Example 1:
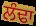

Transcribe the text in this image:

ਲੰਢਾ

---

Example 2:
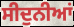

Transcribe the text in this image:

ਸੀਦੁਨੀਆਂ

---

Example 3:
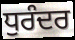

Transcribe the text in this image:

ਧੁਰੰਦਰ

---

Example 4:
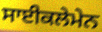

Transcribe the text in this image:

ਸਾਈਕਲੇਮੇਨ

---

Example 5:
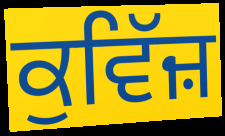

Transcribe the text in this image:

ਕੁਵਿੱਜ਼